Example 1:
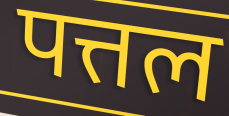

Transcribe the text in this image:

पत्तल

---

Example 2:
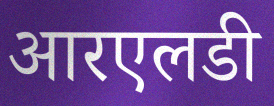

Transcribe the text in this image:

आरएलडी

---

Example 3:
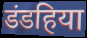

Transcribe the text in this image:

डंडहिया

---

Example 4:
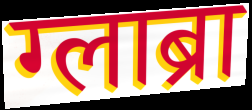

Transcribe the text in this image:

ग्लाब्रा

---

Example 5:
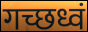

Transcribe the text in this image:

गच्छध्वं